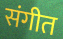
संगीत